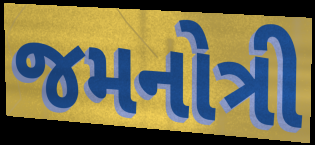
જમનોત્રી